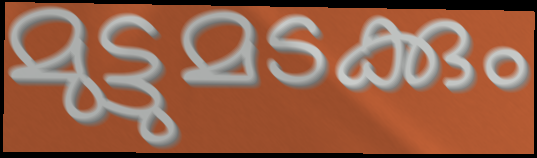
മുട്ടുമടക്കും